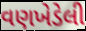
વણખેડેલી